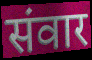
संवार